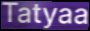
Tatyaa